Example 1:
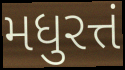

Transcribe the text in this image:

મધુરત્તં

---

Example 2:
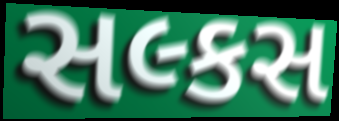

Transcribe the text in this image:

સલ્કસ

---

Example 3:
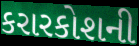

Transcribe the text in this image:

કરારકોશની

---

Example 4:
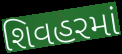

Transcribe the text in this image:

શિવહરમાં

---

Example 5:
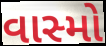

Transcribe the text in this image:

વાસ્મો